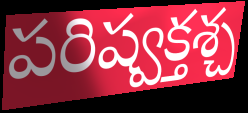
పరిష్వక్తశ్చ